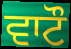
ਵਾਟੌ